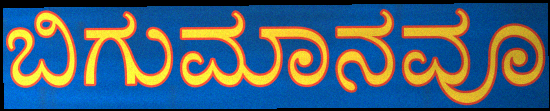
ಬಿಗುಮಾನವೂ